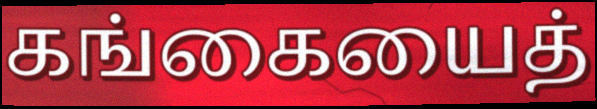
கங்கையைத்